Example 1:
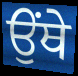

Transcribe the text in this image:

ਉੰਥੇ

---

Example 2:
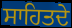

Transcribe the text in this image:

ਸਾਹਿਤਦੇ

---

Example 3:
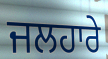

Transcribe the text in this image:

ਜਲਹਾਰੇ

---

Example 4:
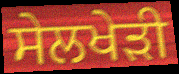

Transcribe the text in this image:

ਸੇਲਖੇੜੀ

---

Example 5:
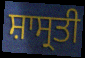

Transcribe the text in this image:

ਸ਼ਾਸ੍ਰਤੀ